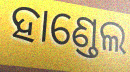
ହାଣ୍ଡେଲ